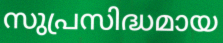
സുപ്രസിദ്ധമായ